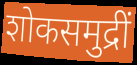
शोकसमुद्रीं